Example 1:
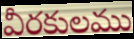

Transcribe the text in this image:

వీరకులము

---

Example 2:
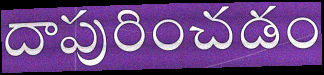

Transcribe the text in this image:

దాపురించడం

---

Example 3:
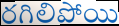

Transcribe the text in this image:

రగిలిపోయి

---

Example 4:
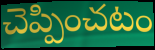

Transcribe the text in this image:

చెప్పించటం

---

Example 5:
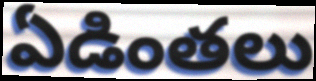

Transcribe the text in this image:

ఏడింతలు